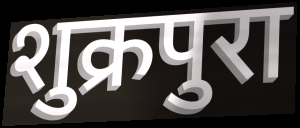
शुक्रपुरा